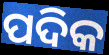
ପଦିକ